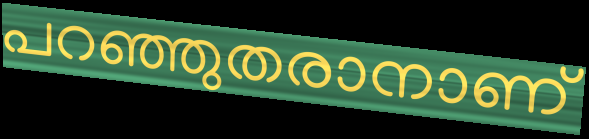
പറഞ്ഞുതരാനാണ്